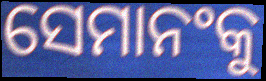
ସେମାନଂକୁ